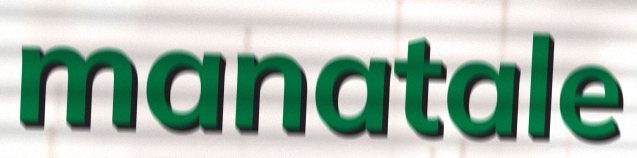
manatale